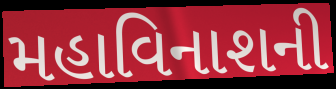
મહાવિનાશની